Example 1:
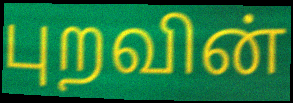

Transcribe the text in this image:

புறவின்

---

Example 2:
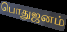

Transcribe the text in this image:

பொதுஜனம்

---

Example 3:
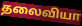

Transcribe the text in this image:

தலைவியா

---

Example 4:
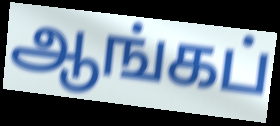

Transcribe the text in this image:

ஆங்கப்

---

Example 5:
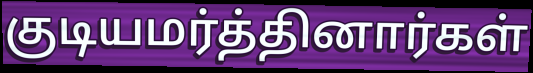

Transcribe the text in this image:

குடியமர்த்தினார்கள்